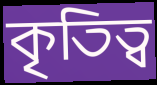
কৃতিত্ব